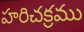
హరిచక్రము